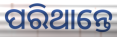
ପରିଥାନ୍ତେ